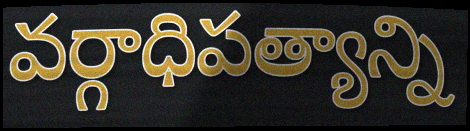
వర్గాధిపత్యాన్ని